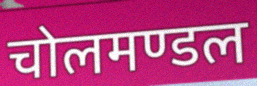
चोलमण्डल